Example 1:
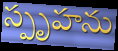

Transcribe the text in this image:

స్పృహను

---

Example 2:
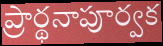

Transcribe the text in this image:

ప్రార్థనాపూర్వక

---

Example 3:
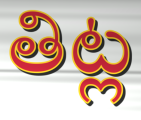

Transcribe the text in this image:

తిట్ల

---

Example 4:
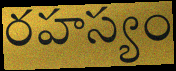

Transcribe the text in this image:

రహస్యం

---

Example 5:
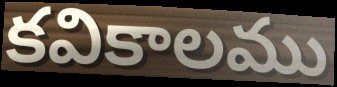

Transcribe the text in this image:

కవికాలము